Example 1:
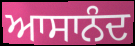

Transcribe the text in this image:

ਆਸਾਨੰਦ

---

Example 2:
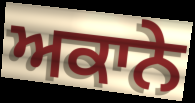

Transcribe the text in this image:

ਅਕਾਨੇ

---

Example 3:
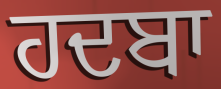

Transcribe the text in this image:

ਹਦਬਾ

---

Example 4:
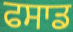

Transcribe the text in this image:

ਫਸਾਡ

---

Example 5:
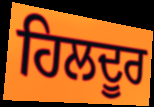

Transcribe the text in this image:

ਹਿਲਦੂਰ